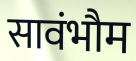
सावंभौम